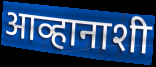
आव्हानाशी